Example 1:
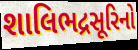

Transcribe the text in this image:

શાલિભદ્રસૂરિનો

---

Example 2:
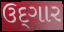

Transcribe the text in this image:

ઉદ્‌ગાર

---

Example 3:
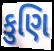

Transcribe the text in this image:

કુણિ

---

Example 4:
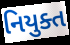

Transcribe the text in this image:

નિયુક્ત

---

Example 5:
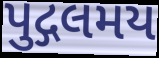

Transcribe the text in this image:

પુદ્ગલમય